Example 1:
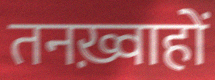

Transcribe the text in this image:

तनख़्वाहों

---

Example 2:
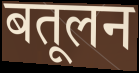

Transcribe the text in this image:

बतूलन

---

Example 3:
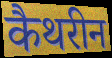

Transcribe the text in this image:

कैथरीन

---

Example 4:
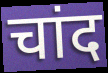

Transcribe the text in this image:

चांद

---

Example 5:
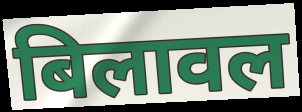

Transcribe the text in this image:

बिलावल